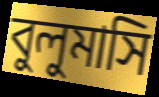
বুলুমাসি